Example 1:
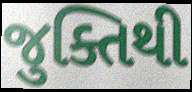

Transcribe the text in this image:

જુક્તિથી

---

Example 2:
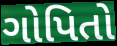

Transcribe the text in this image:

ગોપિતો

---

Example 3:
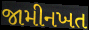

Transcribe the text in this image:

જામીનખત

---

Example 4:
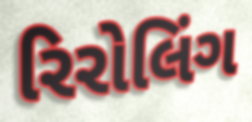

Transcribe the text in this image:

રિરોલિંગ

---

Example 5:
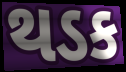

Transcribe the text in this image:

થડક